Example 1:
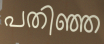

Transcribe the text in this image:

പതിഞ്ഞ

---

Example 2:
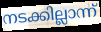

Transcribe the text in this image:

നടക്കില്ലാന്ന്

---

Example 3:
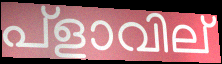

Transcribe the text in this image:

പ്ളാവില്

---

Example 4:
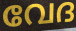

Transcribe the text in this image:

വേദ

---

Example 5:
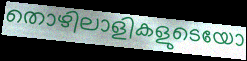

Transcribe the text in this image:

തൊഴിലാളികളുടെയോ